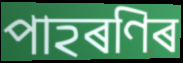
পাহৰণিৰ